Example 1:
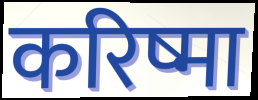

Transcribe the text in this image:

करिष्मा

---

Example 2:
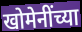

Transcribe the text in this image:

खोमेनींच्या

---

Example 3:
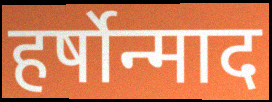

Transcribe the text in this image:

हर्षोन्माद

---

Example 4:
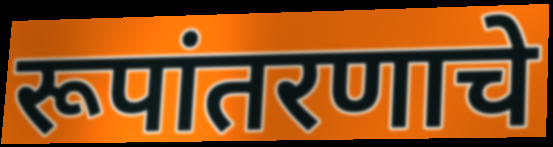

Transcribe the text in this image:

रूपांतरणाचे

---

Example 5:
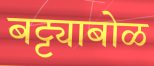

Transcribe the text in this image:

बट्ट्याबोळ